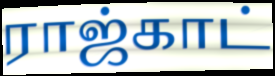
ராஜ்காட்